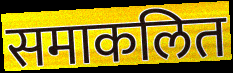
समाकलित